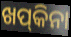
ଖପ୍‍କିନା